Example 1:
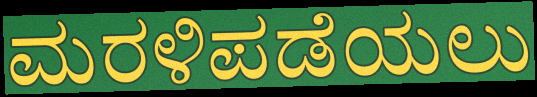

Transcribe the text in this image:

ಮರಳಿಪಡೆಯಲು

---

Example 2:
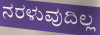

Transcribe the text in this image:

ನರಳುವುದಿಲ್ಲ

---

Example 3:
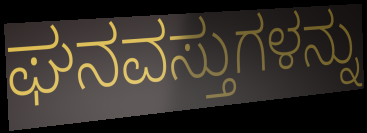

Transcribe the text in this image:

ಘನವಸ್ತುಗಳನ್ನು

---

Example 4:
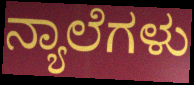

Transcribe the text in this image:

ನ್ಯಾಲೆಗಳು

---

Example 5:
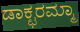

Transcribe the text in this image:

ಡಾಕ್ಟರಮ್ಮಾ